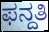
ಫನ್ದತಿ